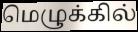
மெழுக்கில்